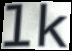
lk